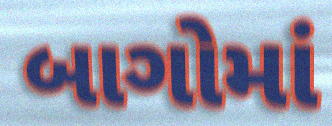
બાગોમાં